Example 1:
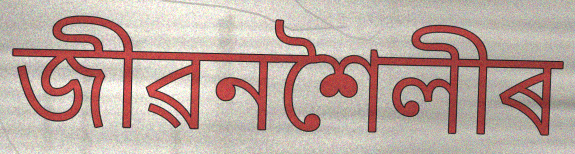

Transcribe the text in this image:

জীৱনশৈলীৰ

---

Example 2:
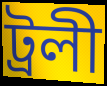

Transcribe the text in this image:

ট্ৰলী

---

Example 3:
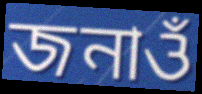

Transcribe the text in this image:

জনাওঁ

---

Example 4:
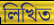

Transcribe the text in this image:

লিখিত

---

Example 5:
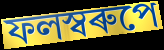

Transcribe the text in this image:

ফলস্বৰুপে